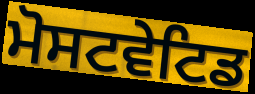
ਮੋਸਟਵੇਟਿਡ